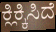
ಕ್ಲಿಕ್ಕಿಸಿದೆ